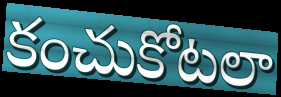
కంచుకోటలా